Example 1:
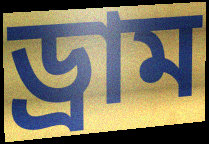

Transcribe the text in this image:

ড্ৰাম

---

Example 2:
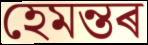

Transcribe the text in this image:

হেমন্তৰ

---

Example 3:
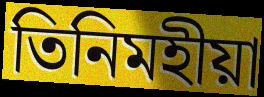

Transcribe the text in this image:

তিনিমহীয়া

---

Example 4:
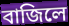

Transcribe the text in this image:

বাজিলে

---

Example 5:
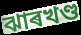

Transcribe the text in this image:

ঝাৰখণ্ড